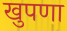
खुपणा